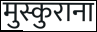
मुस्कुराना